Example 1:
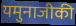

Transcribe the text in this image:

यमुनाजीकी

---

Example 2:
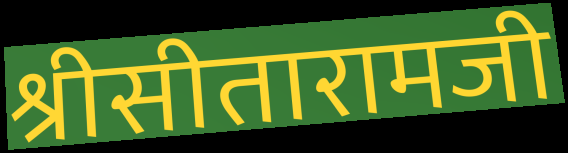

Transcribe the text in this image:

श्रीसीतारामजी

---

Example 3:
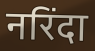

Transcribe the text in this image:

नरिंदा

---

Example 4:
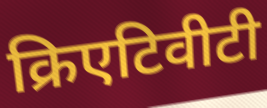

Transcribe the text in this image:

क्रिएटिवीटी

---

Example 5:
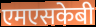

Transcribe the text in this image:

एमएसकेबी